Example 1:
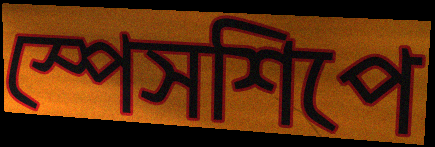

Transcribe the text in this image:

স্পেসশিপে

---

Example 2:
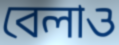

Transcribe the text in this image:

বেলাও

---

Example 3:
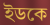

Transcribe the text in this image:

ইডকে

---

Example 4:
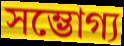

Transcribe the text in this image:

সম্ভোগ্য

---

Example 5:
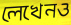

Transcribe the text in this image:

লেখেনও